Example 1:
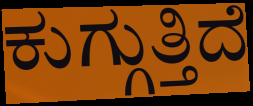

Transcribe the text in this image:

ಕುಗ್ಗುತ್ತಿದೆ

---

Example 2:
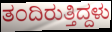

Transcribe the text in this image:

ತಂದಿರುತ್ತಿದ್ದಳು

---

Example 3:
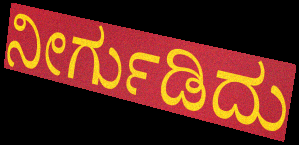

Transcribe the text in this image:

ನೀರ್ಗುಡಿದು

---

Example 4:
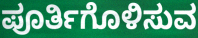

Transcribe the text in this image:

ಪೂರ್ತಿಗೊಳಿಸುವ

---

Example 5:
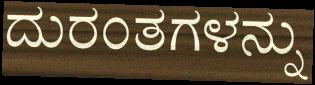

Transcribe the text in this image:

ದುರಂತಗಳನ್ನು